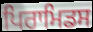
ਪਿਰਾਮਿਡਸ